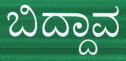
ಬಿದ್ದಾವ